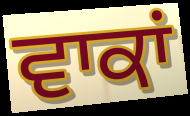
ਵਾਕਾਂ